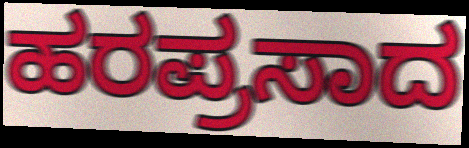
ಹರಪ್ರಸಾದ